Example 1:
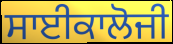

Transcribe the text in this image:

ਸਾਈਕਾਲੋਜੀ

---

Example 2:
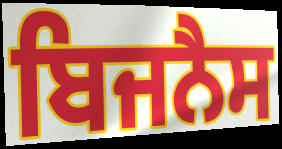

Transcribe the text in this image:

ਬਿਜਨੈਸ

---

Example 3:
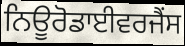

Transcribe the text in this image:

ਨਿਊਰੋਡਾਈਵਰਜੈਂਸ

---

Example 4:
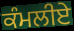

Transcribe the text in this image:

ਕੰਮਲੀਏ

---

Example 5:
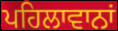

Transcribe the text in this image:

ਪਹਿਲਾਵਾਨਾਂ